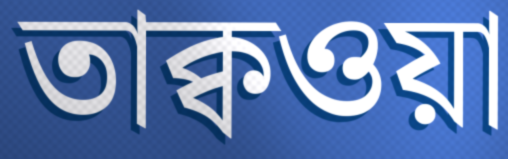
তাক্বওয়া